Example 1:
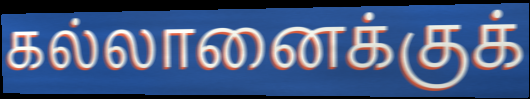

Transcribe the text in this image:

கல்லானைக்குக்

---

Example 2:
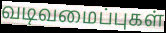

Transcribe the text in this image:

வடிவமைப்புகள்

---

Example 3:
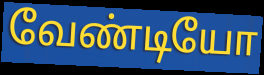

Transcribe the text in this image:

வேண்டியோ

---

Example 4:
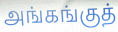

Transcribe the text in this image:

அங்கங்குத்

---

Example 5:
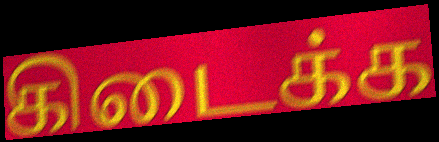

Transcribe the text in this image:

கிடைக்க